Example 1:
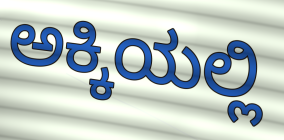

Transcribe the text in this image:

ಅಕ್ಕಿಯಲ್ಲಿ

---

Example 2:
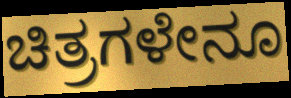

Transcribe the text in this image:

ಚಿತ್ರಗಳೇನೂ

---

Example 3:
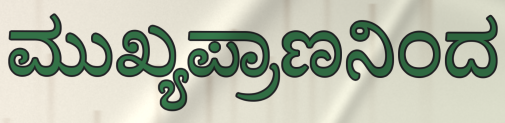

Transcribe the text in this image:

ಮುಖ್ಯಪ್ರಾಣನಿಂದ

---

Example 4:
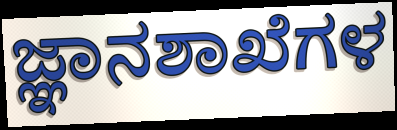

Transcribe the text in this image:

ಜ್ಞಾನಶಾಖೆಗಳ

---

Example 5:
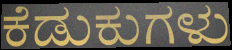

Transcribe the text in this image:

ಕೆಡುಕುಗಳು